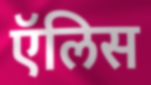
ऍलिस